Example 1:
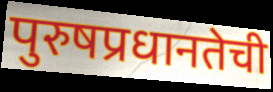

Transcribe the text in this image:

पुरुषप्रधानतेची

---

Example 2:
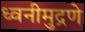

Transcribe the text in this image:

ध्वनीमुद्रणे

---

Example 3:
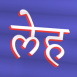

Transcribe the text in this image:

लेह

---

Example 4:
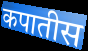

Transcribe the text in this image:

कपातीस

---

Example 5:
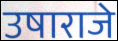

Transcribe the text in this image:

उषाराजे